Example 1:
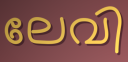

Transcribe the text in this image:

ലേവി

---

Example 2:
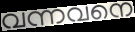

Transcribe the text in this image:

വന്നവനെ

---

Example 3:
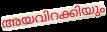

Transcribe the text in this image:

അയവിറക്കിയും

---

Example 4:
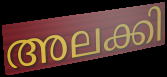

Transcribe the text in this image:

അലക്കി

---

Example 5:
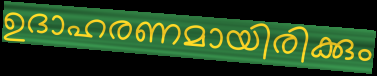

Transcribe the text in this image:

ഉദാഹരണമായിരിക്കും